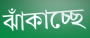
ঝাঁকাচ্ছে